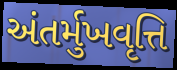
અંતર્મુખવૃત્તિ